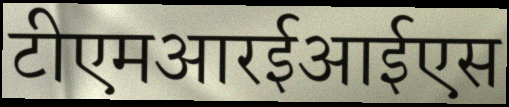
टीएमआरईआईएस